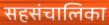
सहसंचालिका